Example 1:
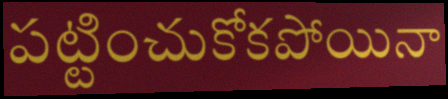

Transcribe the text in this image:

పట్టించుకోకపోయినా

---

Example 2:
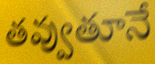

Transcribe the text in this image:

తవ్వుతూనే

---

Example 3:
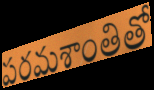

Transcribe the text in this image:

పరమశాంతితో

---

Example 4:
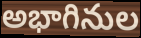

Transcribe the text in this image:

అభాగినుల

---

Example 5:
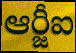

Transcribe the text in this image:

ఆర్జీఐ